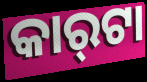
କାର୍‍ଟା